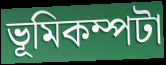
ভূমিকম্পটা